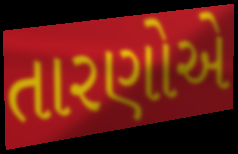
તારણોએ